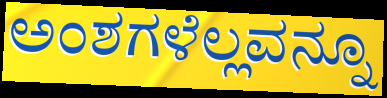
ಅಂಶಗಳೆಲ್ಲವನ್ನೂ